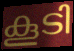
കൂടി